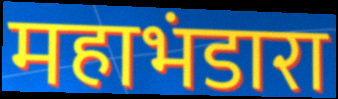
महाभंडारा